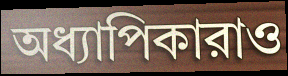
অধ্যাপিকারাও